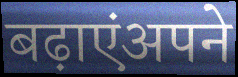
बढ़ाएंअपने